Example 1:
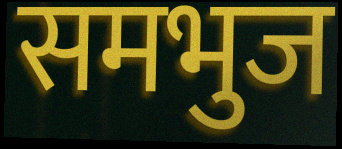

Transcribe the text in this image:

समभुज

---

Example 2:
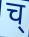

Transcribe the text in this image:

च्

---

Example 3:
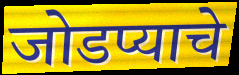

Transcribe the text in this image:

जोडप्याचे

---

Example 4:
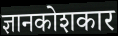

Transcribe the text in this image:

ज्ञानकोशकार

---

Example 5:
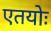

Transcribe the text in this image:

एतयोः